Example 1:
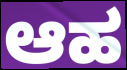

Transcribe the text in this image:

ಆಹ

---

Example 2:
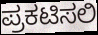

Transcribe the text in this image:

ಪ್ರಕಟಿಸಲಿ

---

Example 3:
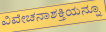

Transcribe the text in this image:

ವಿವೇಚನಾಶಕ್ತಿಯನ್ನೂ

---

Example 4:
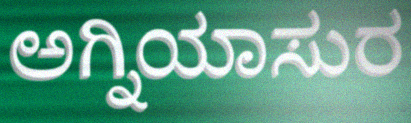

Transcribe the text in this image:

ಅಗ್ನಿಯಾಸುರ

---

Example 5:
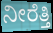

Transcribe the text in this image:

ನೀರೆತ್ತಿ